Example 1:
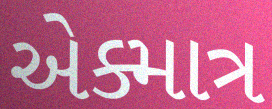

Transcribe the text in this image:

એક્માત્ર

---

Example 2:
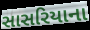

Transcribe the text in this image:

સાસરિયાના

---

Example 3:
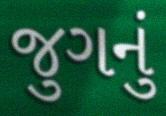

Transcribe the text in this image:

જુગનું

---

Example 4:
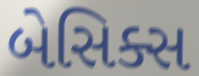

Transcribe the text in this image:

બેસિક્સ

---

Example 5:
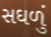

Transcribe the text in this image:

સઘળું